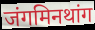
जंगमिनथांग